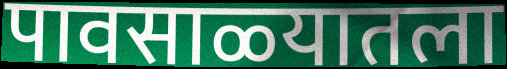
पावसाळ्यातला